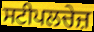
ਸਟੀਪਲਚੇਜ਼